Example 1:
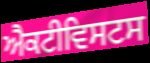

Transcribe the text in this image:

ਐਕਟੀਵਿਸਟਸ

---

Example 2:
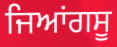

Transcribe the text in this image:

ਜਿਆਂਗਸੂ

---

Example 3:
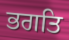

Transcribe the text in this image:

ਭਗਤਿ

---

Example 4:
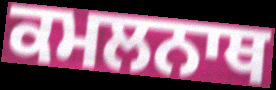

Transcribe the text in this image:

ਕਮਲਨਾਥ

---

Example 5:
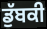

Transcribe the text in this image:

ਡੁੱਬਕੀ